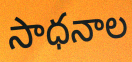
సాధనాల